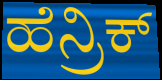
ಹೆನ್ರಿಕ್